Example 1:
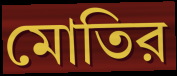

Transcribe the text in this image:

মোতির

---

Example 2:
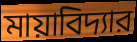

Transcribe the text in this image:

মায়াবিদ্যার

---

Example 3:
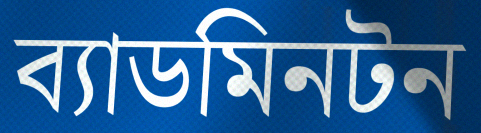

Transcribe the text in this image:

ব্যাডমিনটন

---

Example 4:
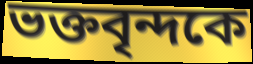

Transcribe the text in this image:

ভক্তবৃন্দকে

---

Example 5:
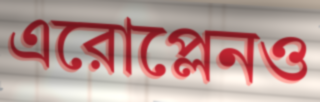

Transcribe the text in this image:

এরোপ্লেনও